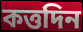
কত্তদিন